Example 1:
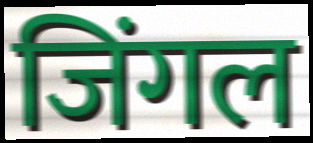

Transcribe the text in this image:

जिंगल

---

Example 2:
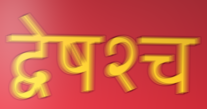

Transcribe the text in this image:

द्वेषश्च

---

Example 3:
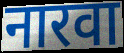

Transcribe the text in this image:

नारवा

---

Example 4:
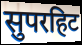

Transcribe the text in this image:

सुपरहिट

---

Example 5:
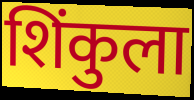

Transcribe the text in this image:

शिंकुला